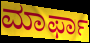
ಮಾರ್ಫಾ